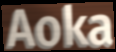
Aoka